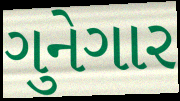
ગુનેગાર